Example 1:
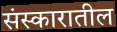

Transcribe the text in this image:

संस्कारातील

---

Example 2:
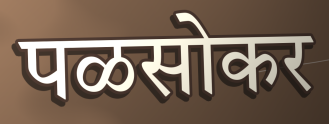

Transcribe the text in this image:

पळसोकर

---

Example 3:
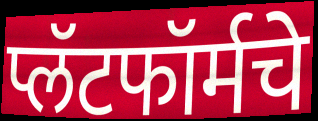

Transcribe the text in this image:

प्लॅटफॉर्मचे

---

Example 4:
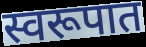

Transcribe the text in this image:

स्वरूपात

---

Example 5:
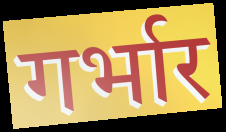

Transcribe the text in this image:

गर्भार